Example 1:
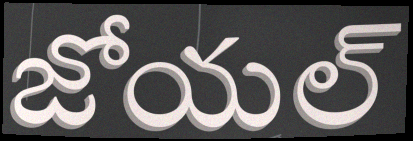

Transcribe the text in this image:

జోయల్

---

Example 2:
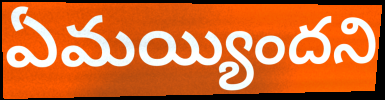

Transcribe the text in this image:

ఏమయ్యిందని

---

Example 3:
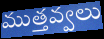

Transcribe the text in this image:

ముత్తవ్వలు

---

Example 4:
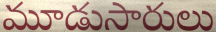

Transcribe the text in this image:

మూడుసారులు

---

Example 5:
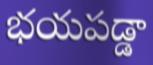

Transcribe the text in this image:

భయపడ్డా